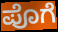
ಪೊಗೆ